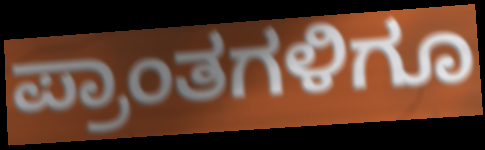
ಪ್ರಾಂತಗಳಿಗೂ